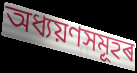
অধ্যয়ণসমূহৰ